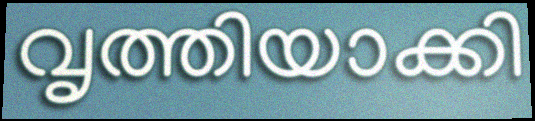
വൃത്തിയാക്കി